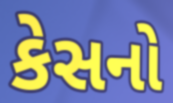
કેસનો